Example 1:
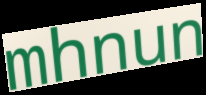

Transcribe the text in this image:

mhnun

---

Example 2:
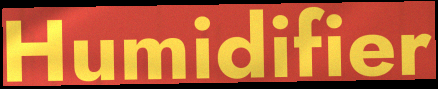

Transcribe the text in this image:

Humidifier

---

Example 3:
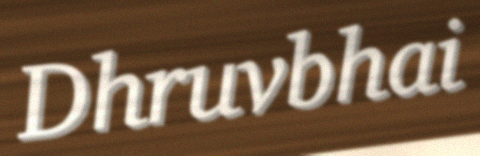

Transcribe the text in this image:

Dhruvbhai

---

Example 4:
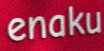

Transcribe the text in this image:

enaku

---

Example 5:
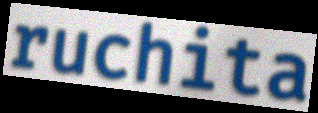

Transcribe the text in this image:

ruchita